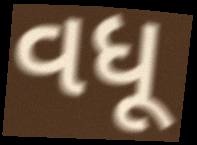
વધૂ